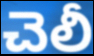
చెలీ